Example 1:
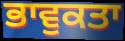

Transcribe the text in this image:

ਭਾਵੁਕਤਾ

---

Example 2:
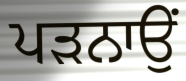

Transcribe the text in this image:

ਪਡ਼ਨਾਉਂ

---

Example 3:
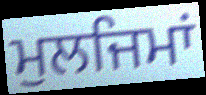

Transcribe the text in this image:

ਮੁਲਜਿਮਾਂ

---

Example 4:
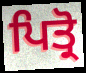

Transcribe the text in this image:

ਪਿਤ੍ਰੋ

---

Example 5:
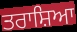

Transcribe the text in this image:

ਤਰਾਸ਼ਿਆ